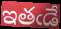
ఇతఁడే